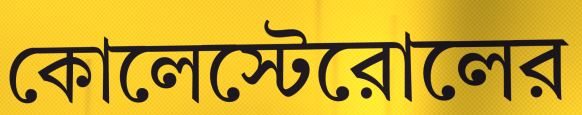
কোলেস্টেরোলের